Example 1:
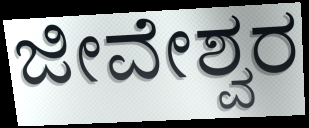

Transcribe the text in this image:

ಜೀವೇಶ್ವರ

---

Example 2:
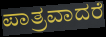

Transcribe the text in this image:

ಪಾತ್ರವಾದರೆ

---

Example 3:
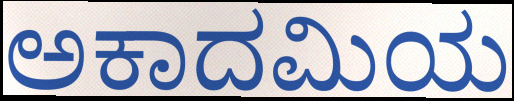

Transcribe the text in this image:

ಅಕಾದಮಿಯ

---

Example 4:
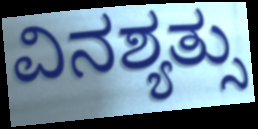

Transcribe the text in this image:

ವಿನಶ್ಯತ್ಸು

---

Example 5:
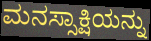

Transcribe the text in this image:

ಮನಸ್ಸಾಕ್ಷಿಯನ್ನು